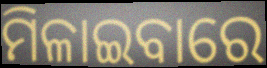
ମିଳାଇବାରେ